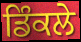
ਡਿੰਕਲੇ